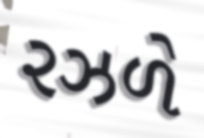
રઝળે